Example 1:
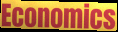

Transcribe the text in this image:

Economics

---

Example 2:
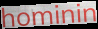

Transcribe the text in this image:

hominin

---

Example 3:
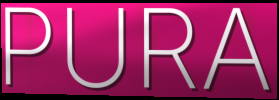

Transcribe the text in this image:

PURA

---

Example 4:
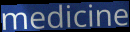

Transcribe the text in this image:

medicine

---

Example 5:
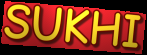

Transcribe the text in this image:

SUKHI